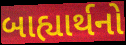
બાહ્યાર્થનો